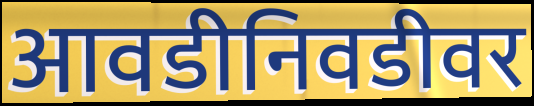
आवडीनिवडीवर